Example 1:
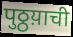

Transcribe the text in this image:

पुठ्ठय़ाची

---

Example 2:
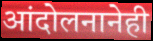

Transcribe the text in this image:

आंदोलनानेही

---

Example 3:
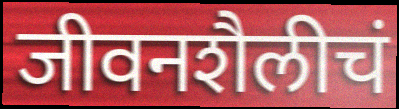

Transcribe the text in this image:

जीवनशैलीचं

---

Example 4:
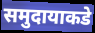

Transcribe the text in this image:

समुदायाकडे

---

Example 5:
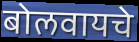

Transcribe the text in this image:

बोलवायचे